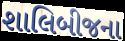
શાલિબીજના